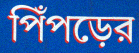
পিঁপড়ের